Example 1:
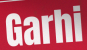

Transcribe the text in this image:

Garhi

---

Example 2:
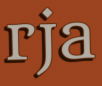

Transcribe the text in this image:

rja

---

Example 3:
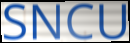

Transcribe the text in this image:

SNCU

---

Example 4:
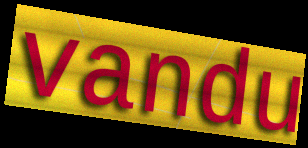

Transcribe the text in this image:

vandu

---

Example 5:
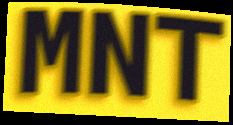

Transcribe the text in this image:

MNT